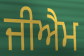
ਜੀਐਮ